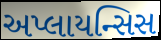
અપ્લાયન્સિસ